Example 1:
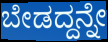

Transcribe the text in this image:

ಬೇಡದ್ದನ್ನೇ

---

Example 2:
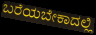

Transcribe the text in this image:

ಬರೆಯಬೇಕಾದಲ್ಲಿ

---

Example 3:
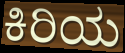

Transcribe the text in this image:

ಕಿರಿಯ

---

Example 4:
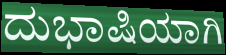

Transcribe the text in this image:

ದುಭಾಷಿಯಾಗಿ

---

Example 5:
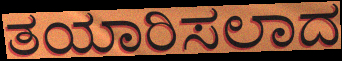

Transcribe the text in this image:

ತಯಾರಿಸಲಾದ